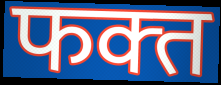
फक्‍त